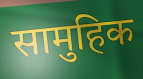
सामुहिक